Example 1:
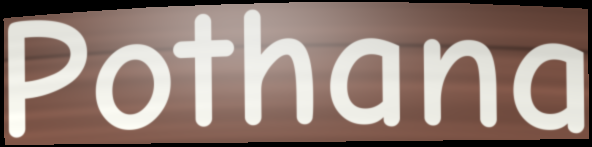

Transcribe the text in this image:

Pothana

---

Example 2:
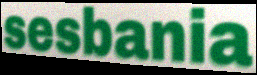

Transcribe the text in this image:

sesbania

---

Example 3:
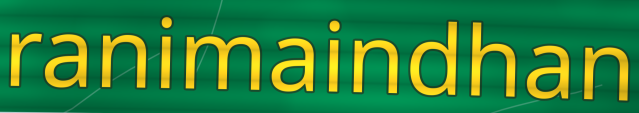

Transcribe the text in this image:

ranimaindhan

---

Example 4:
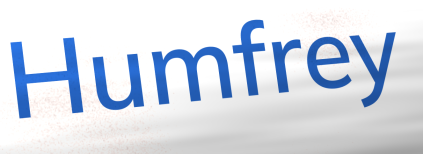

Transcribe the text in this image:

Humfrey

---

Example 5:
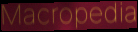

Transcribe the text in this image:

Macropedia